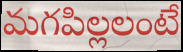
మగపిల్లలంటే